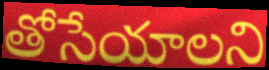
తోసేయాలని